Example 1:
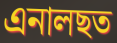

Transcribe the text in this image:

এনালছত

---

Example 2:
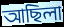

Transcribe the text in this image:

আছিলা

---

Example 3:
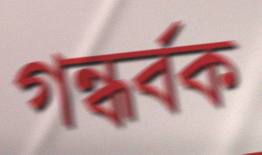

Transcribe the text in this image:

গন্ধৰ্বক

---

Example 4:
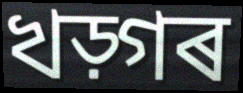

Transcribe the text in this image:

খড়্গৰ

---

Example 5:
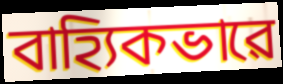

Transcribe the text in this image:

বাহ্যিকভাৱে